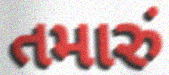
તમારું